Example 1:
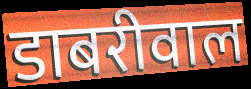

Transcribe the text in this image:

डाबरीवाल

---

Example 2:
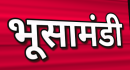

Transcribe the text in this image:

भूसामंडी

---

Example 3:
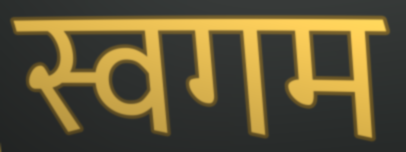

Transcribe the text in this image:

स्वगम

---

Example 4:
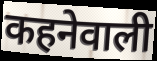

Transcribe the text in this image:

कहनेवाली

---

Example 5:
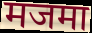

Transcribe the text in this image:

मजमा